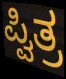
ಪ್ವಿತ್ರ